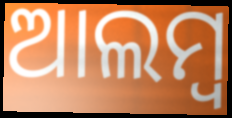
ଆଲମ୍ବ